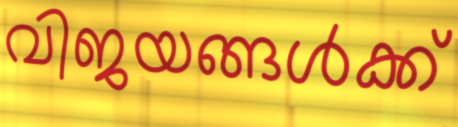
വിജയങ്ങൾക്ക്